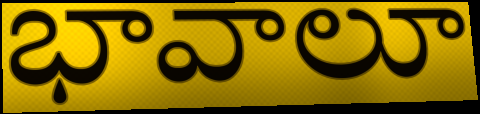
భావాలూ